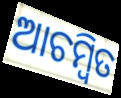
ଆଚମ୍ବିତ